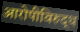
आरोपीविरुद्ध